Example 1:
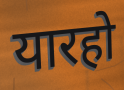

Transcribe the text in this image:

यारहो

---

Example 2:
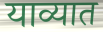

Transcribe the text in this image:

याव्यात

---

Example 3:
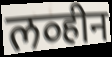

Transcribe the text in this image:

लव्हीन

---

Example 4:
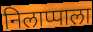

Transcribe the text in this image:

निलाप्पाला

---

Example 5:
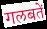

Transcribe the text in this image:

गलबतें